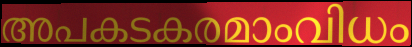
അപകടകരമാംവിധം